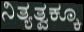
ನಿತ್ಯತ್ವಕ್ಕೂ